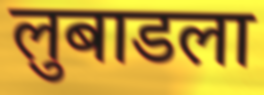
लुबाडला